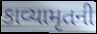
કાવ્યામૃતની